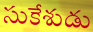
సుకేశుడు